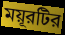
ময়ূরটির